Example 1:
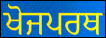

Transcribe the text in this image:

ਖੋਜਪਰਥ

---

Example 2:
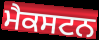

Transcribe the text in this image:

ਮੈਕਸਟਨ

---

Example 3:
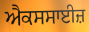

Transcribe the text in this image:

ਐਕਸਸਾਈਜ਼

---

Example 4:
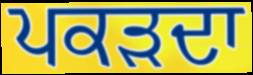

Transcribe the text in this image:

ਪਕੜਦਾ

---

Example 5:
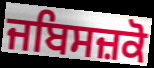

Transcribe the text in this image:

ਜਬਿਸਜ਼ਕੋ